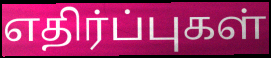
எதிர்ப்புகள்